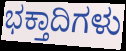
ಭಕ್ತಾದಿಗಳು